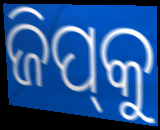
ଜିପ୍‌କୁ